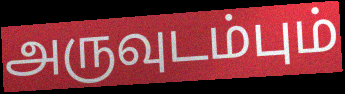
அருவுடம்பும்